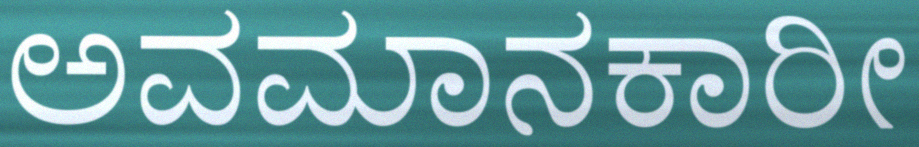
ಅವಮಾನಕಾರೀ